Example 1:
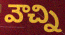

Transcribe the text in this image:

వౌచ్ని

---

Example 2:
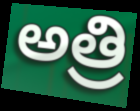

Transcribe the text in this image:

అత్రి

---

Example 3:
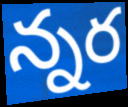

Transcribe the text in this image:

న్నర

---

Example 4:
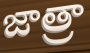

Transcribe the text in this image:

జాత్రా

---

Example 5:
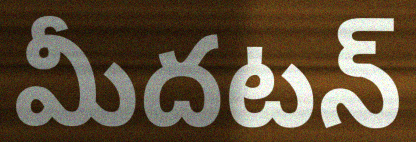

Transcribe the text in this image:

మీదటన్